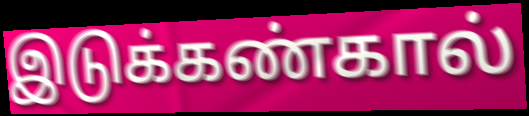
இடுக்கண்கால்